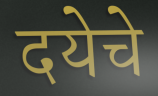
दयेचे